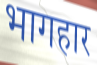
भागहार